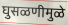
घुसळणीमुळे